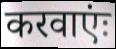
करवाएंः